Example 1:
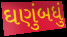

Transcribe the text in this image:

ઘણુંબધું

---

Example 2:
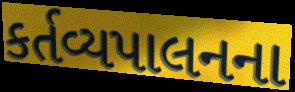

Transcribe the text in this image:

કર્તવ્યપાલનના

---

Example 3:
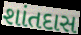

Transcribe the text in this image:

શાંતદાસ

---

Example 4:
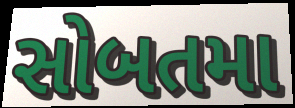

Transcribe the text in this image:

સોબતમા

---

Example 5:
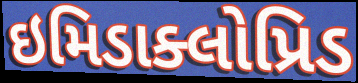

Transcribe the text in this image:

ઇમિડાક્લોપ્રિડ